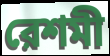
রেশমী